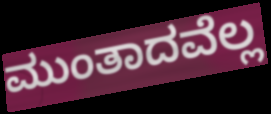
ಮುಂತಾದವೆಲ್ಲ